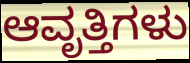
ಆವೃತ್ತಿಗಳು